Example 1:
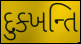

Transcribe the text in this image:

દુક્ખન્તિ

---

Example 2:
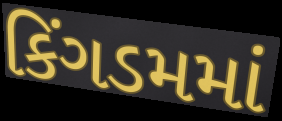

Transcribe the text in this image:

કિંગડમમાં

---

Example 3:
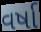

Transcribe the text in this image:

વર્ષા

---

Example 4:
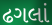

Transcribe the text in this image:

ઢગલાં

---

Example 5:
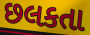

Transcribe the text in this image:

છલકતા